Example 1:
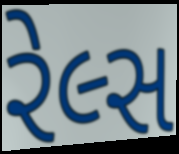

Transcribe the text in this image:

રેલ્સ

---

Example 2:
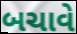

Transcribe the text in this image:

બચાવે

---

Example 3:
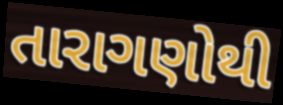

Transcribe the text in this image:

તારાગણોથી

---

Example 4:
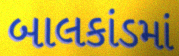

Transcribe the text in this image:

બાલકાંડમાં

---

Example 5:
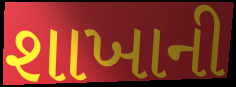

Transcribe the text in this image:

શાખાની